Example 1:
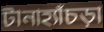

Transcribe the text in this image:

টানাহ্যাঁচড়া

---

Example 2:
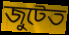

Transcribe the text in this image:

জুট্তে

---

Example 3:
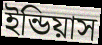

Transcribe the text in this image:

ইন্ডিয়াস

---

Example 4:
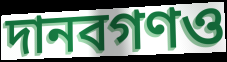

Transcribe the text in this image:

দানবগণও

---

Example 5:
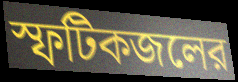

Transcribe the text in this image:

স্ফটিকজলের